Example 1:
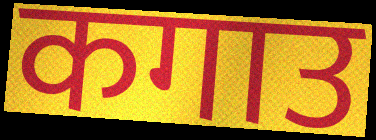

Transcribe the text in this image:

कगाउ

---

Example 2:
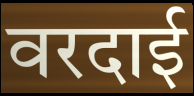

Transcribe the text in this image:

वरदाई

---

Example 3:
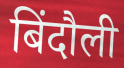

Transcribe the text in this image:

बिंदौली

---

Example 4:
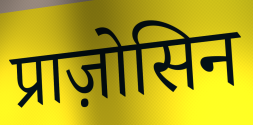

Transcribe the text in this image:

प्राज़ोसिन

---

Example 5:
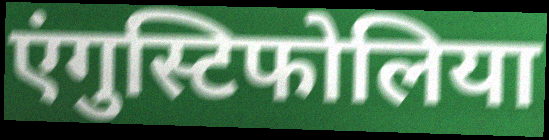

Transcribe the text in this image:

एंगुस्टिफोलिया